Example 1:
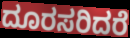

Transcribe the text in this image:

ದೂರಸರಿದರೆ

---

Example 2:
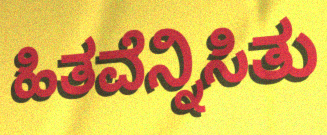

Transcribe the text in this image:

ಹಿತವೆನ್ನಿಸಿತು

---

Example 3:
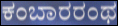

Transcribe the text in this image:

ಕಂಬಾರರಂಥ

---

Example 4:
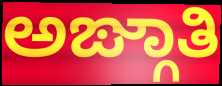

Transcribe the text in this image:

ಅಙ್ಗಾತಿ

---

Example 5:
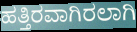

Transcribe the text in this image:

ಹತ್ತಿರವಾಗಿರಲಾಗಿ